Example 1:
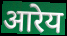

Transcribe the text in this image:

आरेय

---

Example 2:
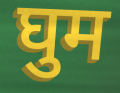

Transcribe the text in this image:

घुम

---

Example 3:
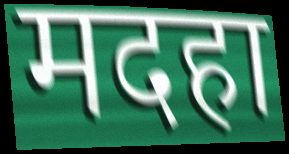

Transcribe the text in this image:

मदहा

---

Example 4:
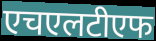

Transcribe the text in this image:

एचएलटीएफ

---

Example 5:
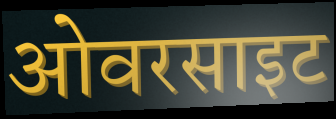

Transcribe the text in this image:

ओवरसाइट